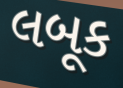
લબૂક